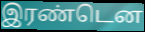
இரண்டென